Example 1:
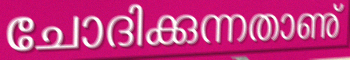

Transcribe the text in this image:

ചോദിക്കുന്നതാണു്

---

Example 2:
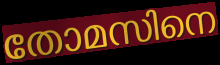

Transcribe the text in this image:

തോമസിനെ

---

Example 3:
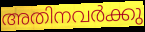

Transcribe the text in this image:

അതിനവർക്കു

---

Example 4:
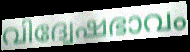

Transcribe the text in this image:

വിദ്വേഷഭാവം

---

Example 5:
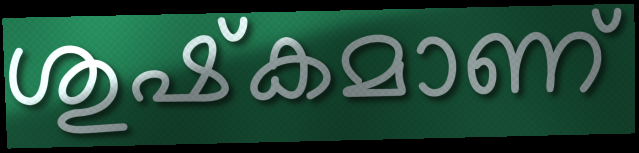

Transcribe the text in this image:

ശുഷ്‌കമാണ്